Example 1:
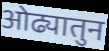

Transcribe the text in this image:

ओढ्यातुन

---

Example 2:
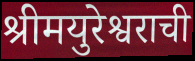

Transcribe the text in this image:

श्रीमयुरेश्वराची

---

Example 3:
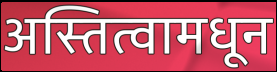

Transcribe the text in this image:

अस्तित्वामधून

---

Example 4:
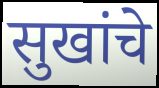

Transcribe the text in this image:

सुखांचे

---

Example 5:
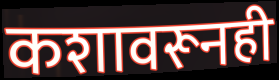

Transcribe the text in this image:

कशावरूनही